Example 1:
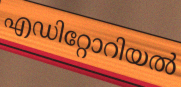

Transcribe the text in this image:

എഡിറ്റോറിയൽ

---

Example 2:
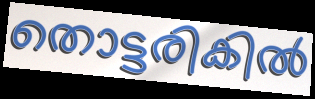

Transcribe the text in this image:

തൊട്ടരികിൽ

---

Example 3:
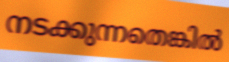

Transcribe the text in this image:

നടക്കുന്നതെങ്കിൽ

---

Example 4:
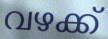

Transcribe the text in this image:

വഴക്ക്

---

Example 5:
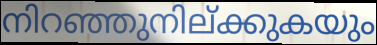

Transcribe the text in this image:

നിറഞ്ഞുനില്ക്കുകയും